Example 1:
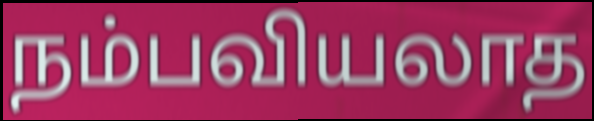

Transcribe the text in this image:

நம்பவியலாத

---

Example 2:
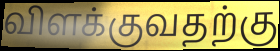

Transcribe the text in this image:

விளக்குவதற்கு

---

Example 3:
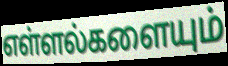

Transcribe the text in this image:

எள்ளல்களையும்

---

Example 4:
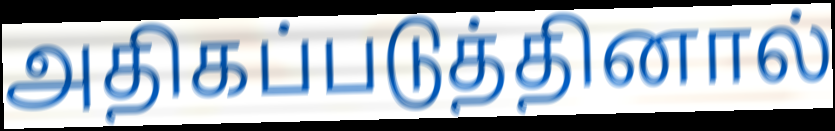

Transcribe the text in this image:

அதிகப்படுத்தினால்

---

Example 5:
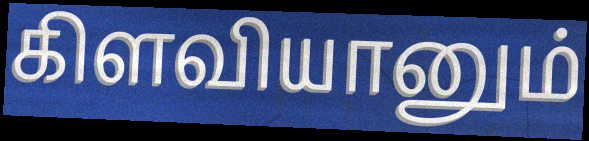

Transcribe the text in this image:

கிளவியானும்